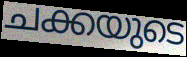
ചക്കയുടെ